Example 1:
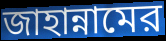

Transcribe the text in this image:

জাহান্নামের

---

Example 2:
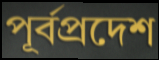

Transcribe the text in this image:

পূর্বপ্রদেশ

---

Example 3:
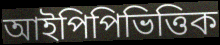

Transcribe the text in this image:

আইপিপিভিত্তিক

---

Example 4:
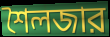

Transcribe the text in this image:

শৈলজার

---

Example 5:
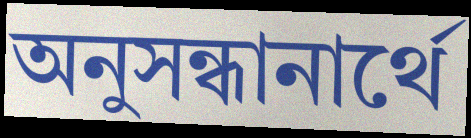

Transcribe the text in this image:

অনুসন্ধানার্থে